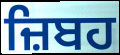
ਜ਼ਿਬਹ